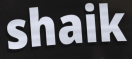
shaik